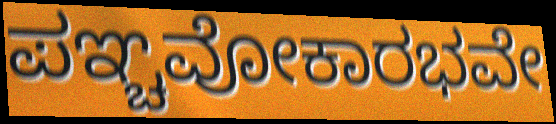
ಪಞ್ಚವೋಕಾರಭವೇ